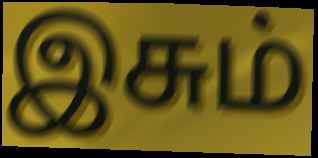
இசும்